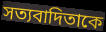
সত্যবাদিতাকে